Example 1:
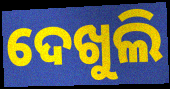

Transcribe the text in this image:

ଦେଖୁଲି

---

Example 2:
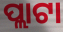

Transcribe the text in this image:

ପ୍ଲାଟା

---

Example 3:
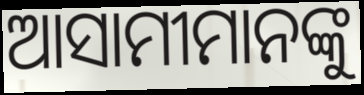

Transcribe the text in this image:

ଆସାମୀମାନଙ୍କୁ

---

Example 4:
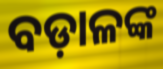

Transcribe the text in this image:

ବଡ଼ାଳଙ୍କ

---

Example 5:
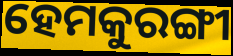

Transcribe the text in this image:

ହେମକୁରଙ୍ଗୀ